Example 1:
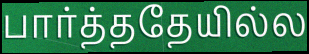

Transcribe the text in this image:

பார்த்ததேயில்ல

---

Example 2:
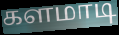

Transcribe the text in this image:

களமாடி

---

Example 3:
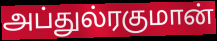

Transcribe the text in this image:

அப்துல்ரகுமான்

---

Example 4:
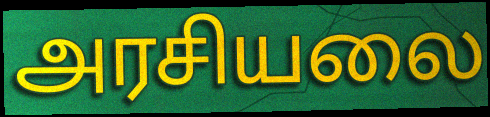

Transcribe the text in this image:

அரசியலை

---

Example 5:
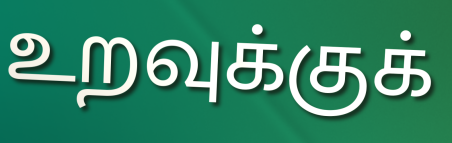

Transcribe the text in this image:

உறவுக்குக்